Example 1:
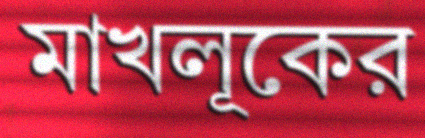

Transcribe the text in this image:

মাখলূকের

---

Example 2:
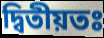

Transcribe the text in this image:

দ্বিতীয়তঃ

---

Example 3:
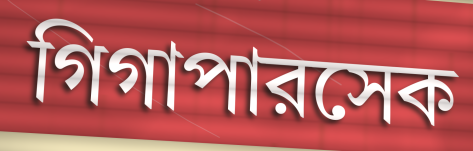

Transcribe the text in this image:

গিগাপারসেক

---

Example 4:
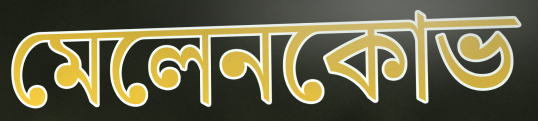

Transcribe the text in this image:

মেলেনকোভ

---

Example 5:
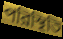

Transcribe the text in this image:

পরিস্থিতি